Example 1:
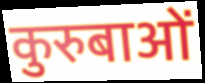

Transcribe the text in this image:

कुरुबाओं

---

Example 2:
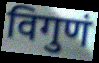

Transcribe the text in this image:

विगुणं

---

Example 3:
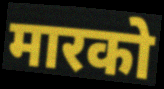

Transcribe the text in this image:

मारको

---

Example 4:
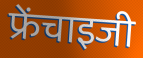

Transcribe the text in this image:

फ्रेंचाइजी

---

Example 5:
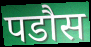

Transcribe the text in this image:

पडौस